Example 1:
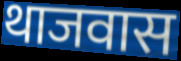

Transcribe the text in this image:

थाजवास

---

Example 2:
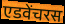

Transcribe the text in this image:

एडवेंचरस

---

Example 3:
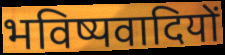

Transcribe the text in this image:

भविष्यवादियों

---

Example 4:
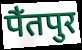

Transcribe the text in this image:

पैंतपुर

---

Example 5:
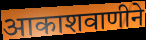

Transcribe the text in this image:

आकाशवाणीने